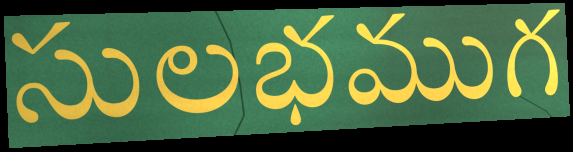
సులభముగ